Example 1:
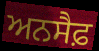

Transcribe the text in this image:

ਅਨਸੈਫ਼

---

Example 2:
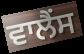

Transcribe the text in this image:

ਵਾਲੈਂਸ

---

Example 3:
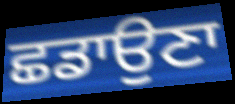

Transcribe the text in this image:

ਛਡਾਉਣਾ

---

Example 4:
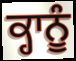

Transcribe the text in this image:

ਕ੍ਹਾਨੂੰ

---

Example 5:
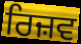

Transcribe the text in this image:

ਰਿਜ਼ਵ